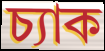
চ্যাক